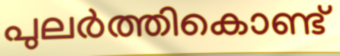
പുലർത്തികൊണ്ട്